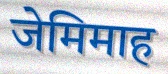
जेमिमाह